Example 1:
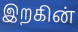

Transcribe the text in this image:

இறகின்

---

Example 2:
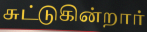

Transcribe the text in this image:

சுட்டுகின்றார்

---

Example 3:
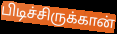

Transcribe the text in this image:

பிடிச்சிருக்கான்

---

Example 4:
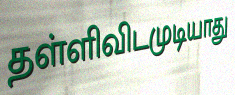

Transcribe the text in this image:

தள்ளிவிடமுடியாது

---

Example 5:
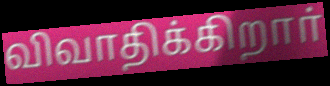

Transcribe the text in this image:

விவாதிக்கிறார்